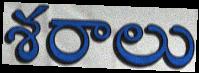
శరాలు